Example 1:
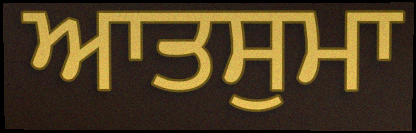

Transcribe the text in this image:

ਆਤਸੁਮਾ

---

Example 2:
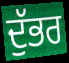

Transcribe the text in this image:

ਦੁੱਭਰ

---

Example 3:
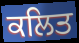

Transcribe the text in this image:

ਕਲਿਤ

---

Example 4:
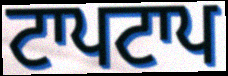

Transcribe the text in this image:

ਟਾਪਟਾਪ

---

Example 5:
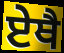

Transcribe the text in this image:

ਏਥੈ